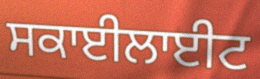
ਸਕਾਈਲਾਈਟ